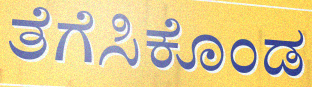
ತೆಗೆಸಿಕೊಂಡ